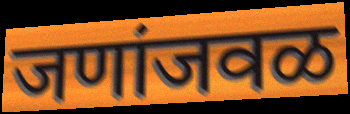
जणांजवळ